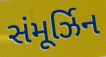
સંમૂર્ઝિન